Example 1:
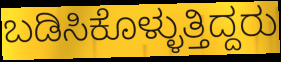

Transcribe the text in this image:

ಬಡಿಸಿಕೊಳ್ಳುತ್ತಿದ್ದರು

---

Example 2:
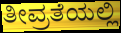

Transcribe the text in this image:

ತೀವ್ರತೆಯಲ್ಲಿ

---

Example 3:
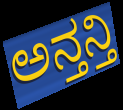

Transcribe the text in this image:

ಅನ್ತನ್ತಿ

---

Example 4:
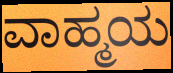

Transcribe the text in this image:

ವಾಹ್ಮಯ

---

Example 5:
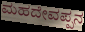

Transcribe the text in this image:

ಮಹದೇವಪ್ಪನ